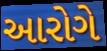
આરોગે